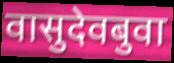
वासुदेवबुवा